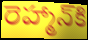
రెహ్మాన్‌కి